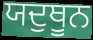
ਯਦੁਥੂਨ